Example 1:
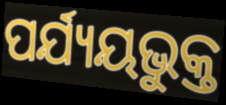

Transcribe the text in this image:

ପର୍ଯ୍ୟୟଭୁକ୍ତ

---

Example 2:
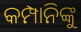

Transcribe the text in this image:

କମ୍ପାନିଙ୍କୁ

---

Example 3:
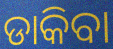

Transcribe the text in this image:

ଡାକିବା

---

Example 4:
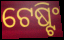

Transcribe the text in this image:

ଟେଷ୍ଟିଂ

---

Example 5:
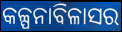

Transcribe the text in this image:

କଳ୍ପନାବିଳାସର